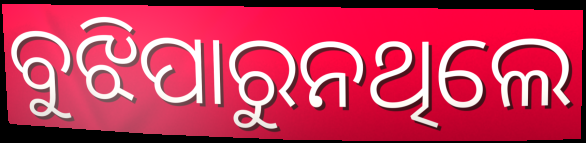
ବୁଝିପାରୁନଥିଲେ